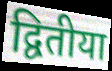
द्वितीया